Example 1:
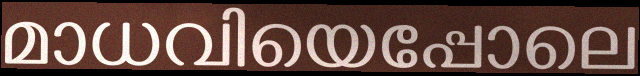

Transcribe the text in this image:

മാധവിയെപ്പോലെ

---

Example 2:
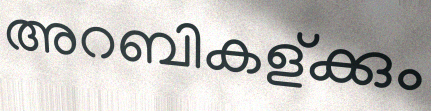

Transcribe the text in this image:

അറബികള്ക്കും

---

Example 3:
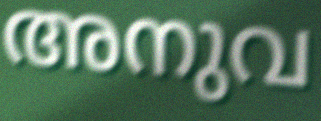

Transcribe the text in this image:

അനുവ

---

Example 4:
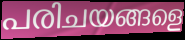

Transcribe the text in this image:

പരിചയങ്ങളെ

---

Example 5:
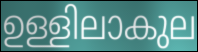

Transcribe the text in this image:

ഉള്ളിലാകുല